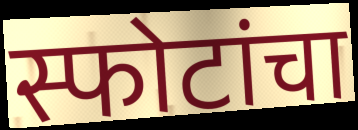
स्फोटांचा